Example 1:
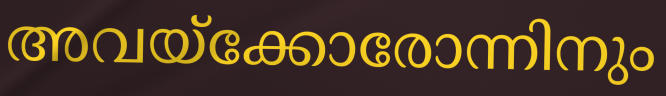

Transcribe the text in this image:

അവയ്ക്കോരോന്നിനും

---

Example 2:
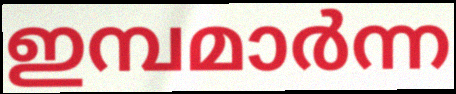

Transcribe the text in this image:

ഇമ്പമാർന്ന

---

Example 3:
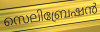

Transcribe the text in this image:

സെലിബ്രേഷൻ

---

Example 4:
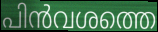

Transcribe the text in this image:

പിൻവശത്തെ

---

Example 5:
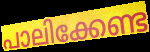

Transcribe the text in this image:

പാലിക്കേണ്ട